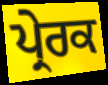
ਪ੍ਰੇਰਕ